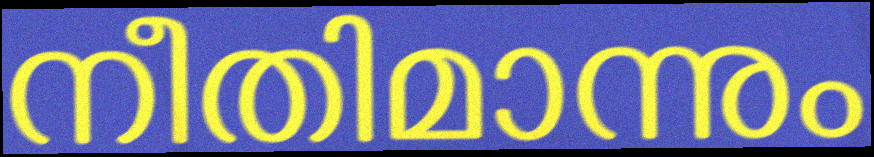
നീതിമാന്നും